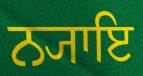
ਨ੍ਯਾਇ